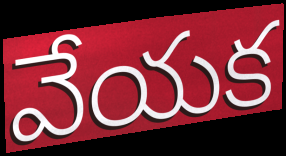
వేయక